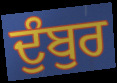
ਦੁੰਬੁਰ